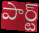
పార్ట్